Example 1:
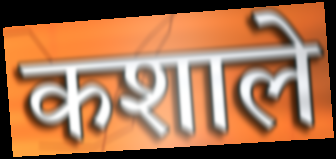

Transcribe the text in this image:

कशाले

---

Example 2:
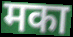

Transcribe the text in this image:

मका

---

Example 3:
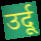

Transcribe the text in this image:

उर्दू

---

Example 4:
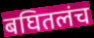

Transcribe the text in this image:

बघितलंच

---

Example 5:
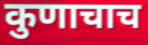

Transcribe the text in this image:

कुणाचाच